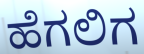
ಹೆಗಲಿಗ